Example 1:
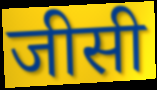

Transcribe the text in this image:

जीसी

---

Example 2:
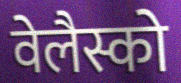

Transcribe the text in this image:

वेलैस्को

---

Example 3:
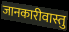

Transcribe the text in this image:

जानकारीवास्तु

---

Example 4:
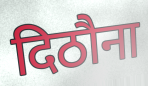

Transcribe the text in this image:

दिठौना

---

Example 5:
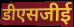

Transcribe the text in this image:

डीएसजीई